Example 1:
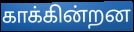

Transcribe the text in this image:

காக்கின்றன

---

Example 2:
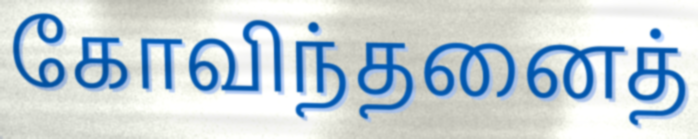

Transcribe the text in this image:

கோவிந்தனைத்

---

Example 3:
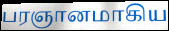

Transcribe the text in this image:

பரஞானமாகிய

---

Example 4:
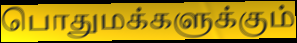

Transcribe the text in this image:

பொதுமக்களுக்கும்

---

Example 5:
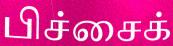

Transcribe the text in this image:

பிச்சைக்